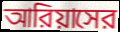
আরিয়াসের